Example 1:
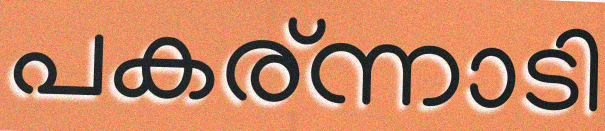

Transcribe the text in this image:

പകര്ന്നാടി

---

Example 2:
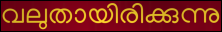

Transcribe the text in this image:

വലുതായിരിക്കുന്നു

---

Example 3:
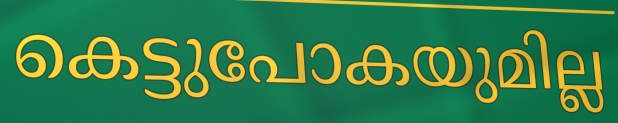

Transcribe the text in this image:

കെട്ടുപോകയുമില്ല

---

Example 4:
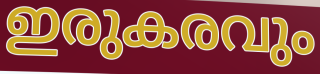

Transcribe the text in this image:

ഇരുകരവും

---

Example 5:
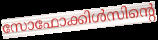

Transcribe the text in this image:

സോഫോക്കിൾസിന്റെ